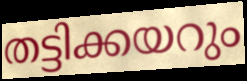
തട്ടിക്കയറും